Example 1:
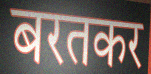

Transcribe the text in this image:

बरतकर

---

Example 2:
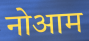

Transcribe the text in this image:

नोआम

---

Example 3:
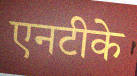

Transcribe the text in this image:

एनटीके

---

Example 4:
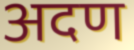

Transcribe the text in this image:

अदण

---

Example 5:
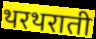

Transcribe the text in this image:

थरथराती